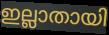
ഇല്ലാതായി